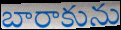
బారాకును